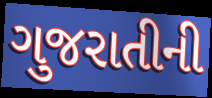
ગુજરાતીની